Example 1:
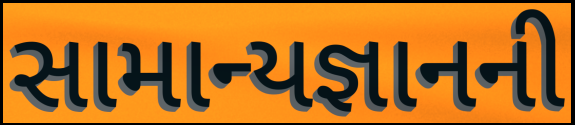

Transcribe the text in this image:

સામાન્યજ્ઞાનની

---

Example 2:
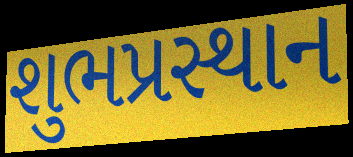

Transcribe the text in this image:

શુભપ્રસ્થાન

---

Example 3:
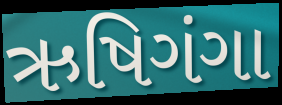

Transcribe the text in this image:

ઋષિગંગા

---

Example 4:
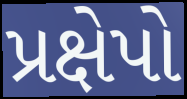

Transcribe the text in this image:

પ્રક્ષેપો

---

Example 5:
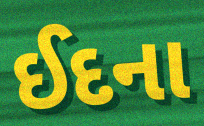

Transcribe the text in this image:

ઈદના